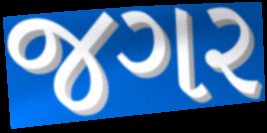
જગર